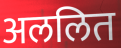
अललित